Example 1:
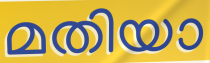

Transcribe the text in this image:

മതിയാ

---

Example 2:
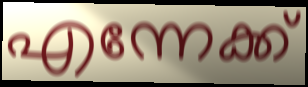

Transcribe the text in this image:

എന്നേക്ക്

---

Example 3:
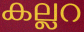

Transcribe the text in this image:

കല്ലറ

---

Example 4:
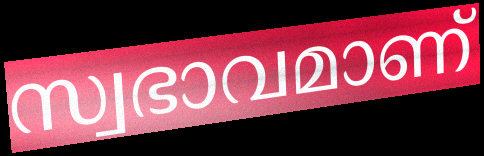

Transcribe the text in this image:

സ്വഭാവമാണ്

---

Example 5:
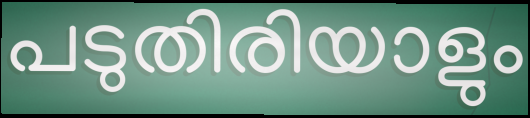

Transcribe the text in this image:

പടുതിരിയാളും